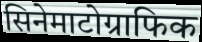
सिनेमाटोग्राफिक